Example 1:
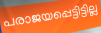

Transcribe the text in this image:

പരാജയപ്പെട്ടിട്ടില്ല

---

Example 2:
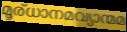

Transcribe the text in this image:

മൂര്ധാനമവ്യാന്മമ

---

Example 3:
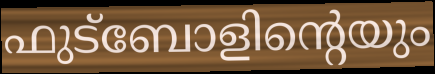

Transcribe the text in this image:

ഫുട്ബോളിന്റെയും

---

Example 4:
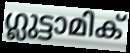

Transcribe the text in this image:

ഗ്ലുട്ടാമിക്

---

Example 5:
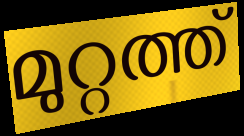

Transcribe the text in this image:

മുറ്റത്ത്